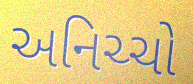
અનિચ્ચો